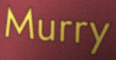
Murry